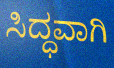
ಸಿದ್ಧವಾಗಿ